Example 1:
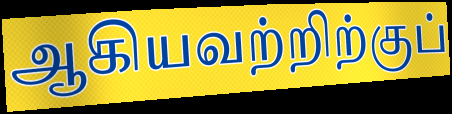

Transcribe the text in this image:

ஆகியவற்றிற்குப்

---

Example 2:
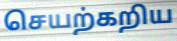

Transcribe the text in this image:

செயற்கறிய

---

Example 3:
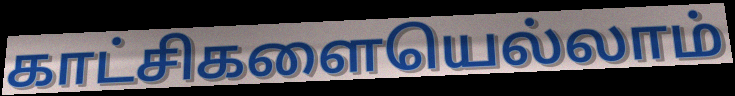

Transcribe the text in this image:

காட்சிகளையெல்லாம்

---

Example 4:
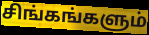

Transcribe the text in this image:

சிங்கங்களும்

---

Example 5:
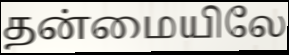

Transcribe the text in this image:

தன்மையிலே